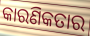
କାରଣିକତାର